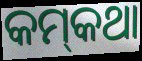
କମ୍‌କଥା